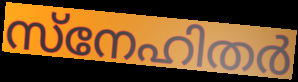
സ്നേഹിതർ